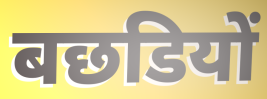
बछडियों